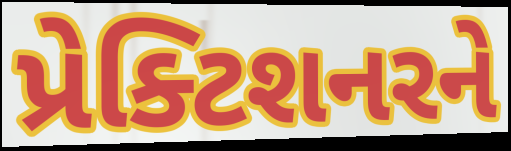
પ્રેક્ટિશનરને